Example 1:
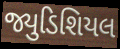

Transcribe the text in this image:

જ્યુડિશિયલ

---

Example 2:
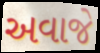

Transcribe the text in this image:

અવાજે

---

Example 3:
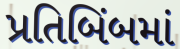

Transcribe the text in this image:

પ્રતિબિંબમાં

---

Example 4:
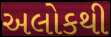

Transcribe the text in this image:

અલોકથી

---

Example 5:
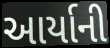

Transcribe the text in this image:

આર્યાની